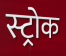
स्‍ट्रोक